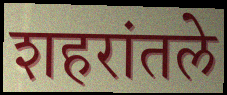
शहरांतले